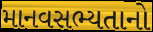
માનવસભ્યતાનો